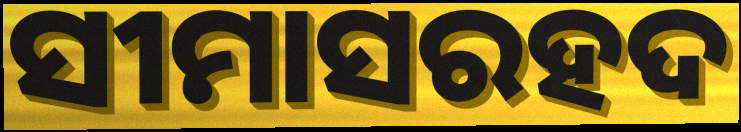
ସୀମାସରହଦ